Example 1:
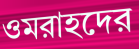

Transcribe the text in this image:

ওমরাহদের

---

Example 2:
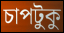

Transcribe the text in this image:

চাপটুকু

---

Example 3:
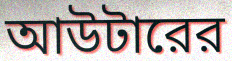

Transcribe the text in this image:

আউটারের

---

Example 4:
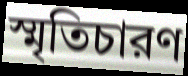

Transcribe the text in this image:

স্মৃতিচারণ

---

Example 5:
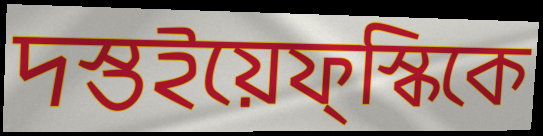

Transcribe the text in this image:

দস্তইয়েফ্স্কিকে